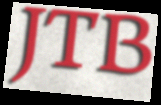
JTB